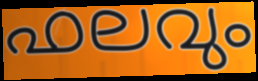
ഫലവും